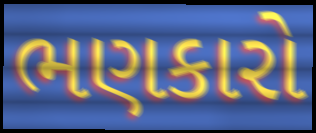
ભણકારો